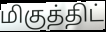
மிகுத்திட்